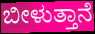
ಬೀಳುತ್ತಾನೆ